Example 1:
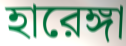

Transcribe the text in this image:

হারেঙ্গা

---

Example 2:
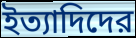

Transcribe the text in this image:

ইত্যাদিদের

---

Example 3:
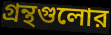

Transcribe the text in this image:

গ্রন্থগুলোর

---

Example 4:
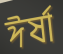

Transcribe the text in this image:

ঈর্ষা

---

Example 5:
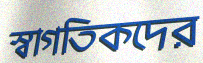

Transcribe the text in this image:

স্বাগতিকদের